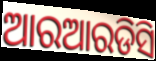
ଆରଆରଡିସି